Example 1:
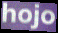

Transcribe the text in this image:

hojo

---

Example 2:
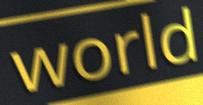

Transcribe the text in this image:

world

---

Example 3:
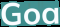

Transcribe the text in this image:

Goa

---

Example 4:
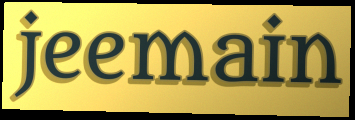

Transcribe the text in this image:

jeemain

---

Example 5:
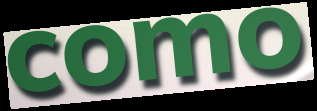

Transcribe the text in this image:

como